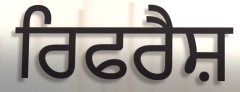
ਰਿਫਰੈਸ਼